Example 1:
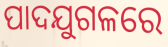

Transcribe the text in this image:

ପାଦଯୁଗଳରେ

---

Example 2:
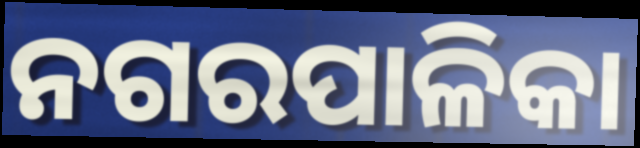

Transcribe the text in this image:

ନଗରପାଳିକା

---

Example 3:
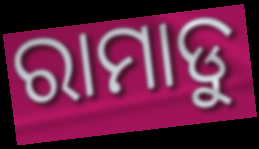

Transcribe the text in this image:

ରାମାଡୁ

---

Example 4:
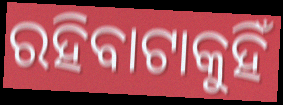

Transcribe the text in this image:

ରହିବାଟାକୁହିଁ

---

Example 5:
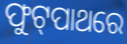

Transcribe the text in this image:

ଫୁଟ୍‍ପାଥରେ